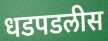
धडपडलीस